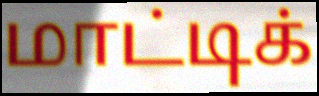
மாட்டிக்